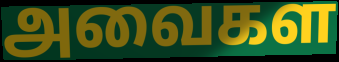
அவைகள